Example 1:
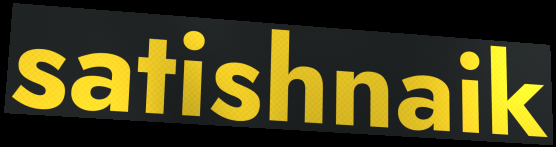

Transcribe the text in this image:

satishnaik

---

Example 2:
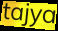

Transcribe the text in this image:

tajya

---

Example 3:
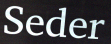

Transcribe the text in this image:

Seder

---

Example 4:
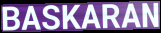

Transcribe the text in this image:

BASKARAN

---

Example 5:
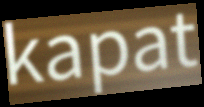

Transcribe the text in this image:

kapat